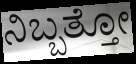
ನಿಬ್ಬತ್ತೋ